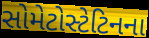
સોમેટોસ્ટેટિનના